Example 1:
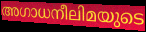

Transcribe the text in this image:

അഗാധനീലിമയുടെ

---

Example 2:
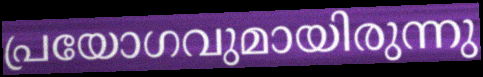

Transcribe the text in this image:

പ്രയോഗവുമായിരുന്നു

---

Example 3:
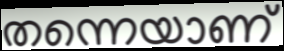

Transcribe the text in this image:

തന്നെയാണ്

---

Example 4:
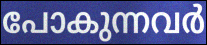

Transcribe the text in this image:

പോകുന്നവർ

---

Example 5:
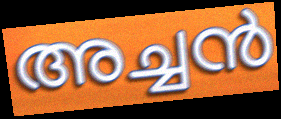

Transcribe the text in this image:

അച്ചൻ